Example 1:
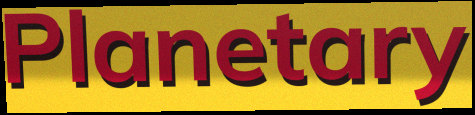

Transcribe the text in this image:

Planetary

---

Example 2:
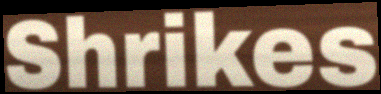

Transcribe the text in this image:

Shrikes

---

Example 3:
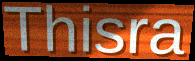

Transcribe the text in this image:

Thisra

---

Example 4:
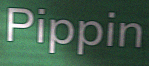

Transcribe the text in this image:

Pippin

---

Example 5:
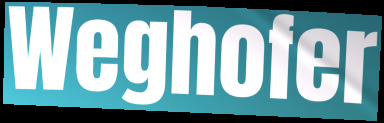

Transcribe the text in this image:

Weghofer